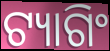
ଟ୍ୟାଗିଂ